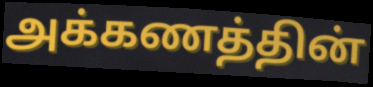
அக்கணத்தின்